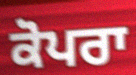
ਕੋਪਰਾ